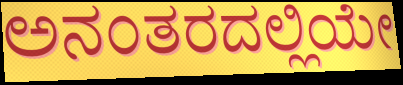
ಅನಂತರದಲ್ಲಿಯೇ